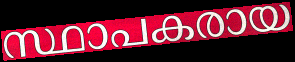
സ്ഥാപകരായ